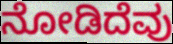
ನೋಡಿದೆವು